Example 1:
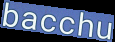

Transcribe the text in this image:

bacchu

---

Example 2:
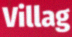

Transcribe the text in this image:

Villag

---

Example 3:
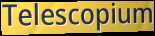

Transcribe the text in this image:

Telescopium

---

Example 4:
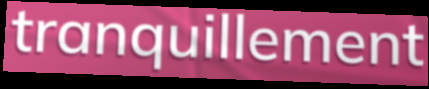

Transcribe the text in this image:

tranquillement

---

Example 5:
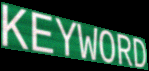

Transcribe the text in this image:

KEYWORD